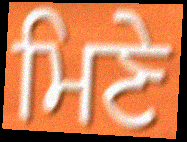
ਮਿਣੇ